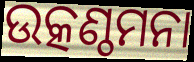
ଉତ୍କଣ୍ଠମନା